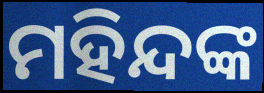
ମହିନ୍ଦଙ୍କ